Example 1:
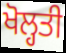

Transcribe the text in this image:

ਖੋਲ੍ਹਤੀ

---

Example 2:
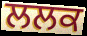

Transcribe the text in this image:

ਲਲਕ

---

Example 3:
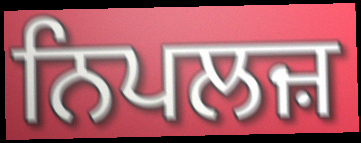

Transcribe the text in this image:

ਨਿਪਲਜ਼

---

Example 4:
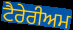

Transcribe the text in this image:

ਟੈਰੇਰੀਅਮ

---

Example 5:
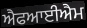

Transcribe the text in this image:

ਐਫਆਈਐਮ